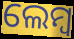
ଲେମ୍ବ